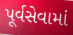
પૂર્વસેવામાં